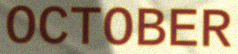
OCTOBER